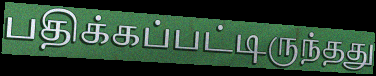
பதிக்கப்பட்டிருந்தது